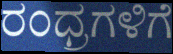
ರಂಧ್ರಗಳಿಗೆ